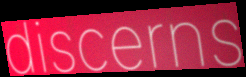
discerns